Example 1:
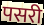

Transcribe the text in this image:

पसरी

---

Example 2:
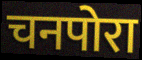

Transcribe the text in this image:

चनपोरा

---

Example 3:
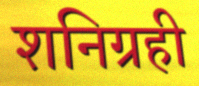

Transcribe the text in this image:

शनिग्रही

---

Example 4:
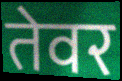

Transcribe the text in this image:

तेवर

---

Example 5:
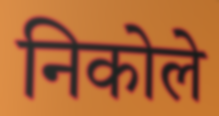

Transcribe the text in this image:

निकोले